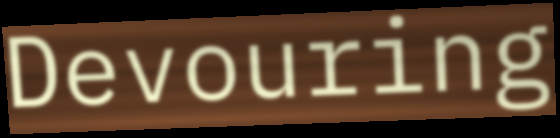
Devouring